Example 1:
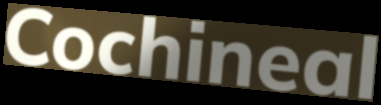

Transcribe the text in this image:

Cochineal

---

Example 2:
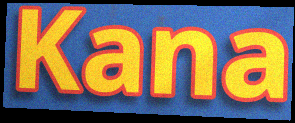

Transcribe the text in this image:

Kana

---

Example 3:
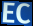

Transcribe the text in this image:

EC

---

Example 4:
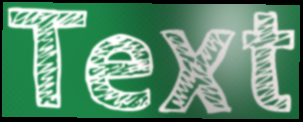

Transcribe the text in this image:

Text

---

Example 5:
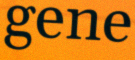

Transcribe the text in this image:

gene